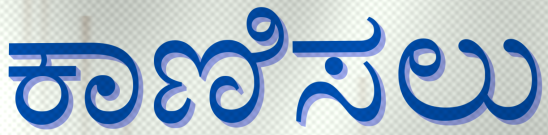
ಕಾಣಿಸಲು